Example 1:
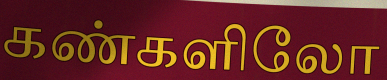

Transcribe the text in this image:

கண்களிலோ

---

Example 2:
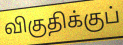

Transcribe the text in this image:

விகுதிக்குப்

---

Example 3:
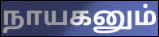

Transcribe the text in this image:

நாயகனும்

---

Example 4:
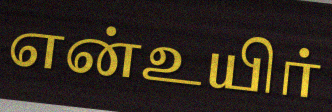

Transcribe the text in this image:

என்உயிர்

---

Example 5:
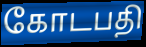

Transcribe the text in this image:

கோடபதி